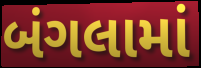
બંગલામાં